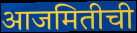
आजमितीची